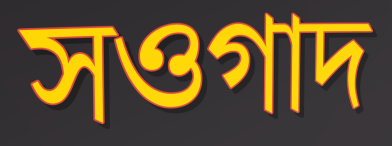
সওগাদ